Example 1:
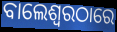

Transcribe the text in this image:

ବାଲେଶ୍ଵରଠାରେ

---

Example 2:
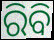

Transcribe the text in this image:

ରିବି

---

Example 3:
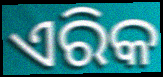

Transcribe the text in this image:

ଏରିକ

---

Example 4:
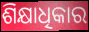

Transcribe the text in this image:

ଶିକ୍ଷାଧିକାର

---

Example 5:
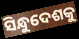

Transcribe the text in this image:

ସିନ୍ଧୁଦେଶକୁ